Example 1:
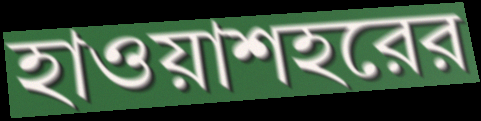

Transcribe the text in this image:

হাওয়াশহরের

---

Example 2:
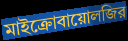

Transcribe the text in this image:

মাইক্রোবায়োলজির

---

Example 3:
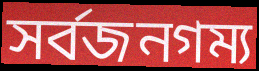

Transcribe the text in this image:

সর্বজনগম্য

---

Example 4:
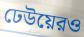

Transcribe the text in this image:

ঢেউয়েরও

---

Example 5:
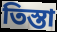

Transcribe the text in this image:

তিস্তা